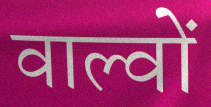
वाल्वों